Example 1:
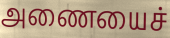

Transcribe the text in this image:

அணையைச்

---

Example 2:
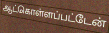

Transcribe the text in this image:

ஆட்கொள்ளப்பட்டேன்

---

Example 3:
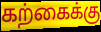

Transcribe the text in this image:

கற்கைக்கு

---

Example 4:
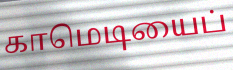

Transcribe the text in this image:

காமெடியைப்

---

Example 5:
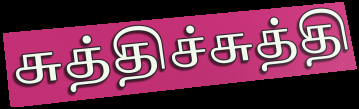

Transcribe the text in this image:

சுத்திச்சுத்தி